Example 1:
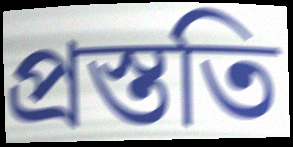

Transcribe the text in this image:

প্রস্ততি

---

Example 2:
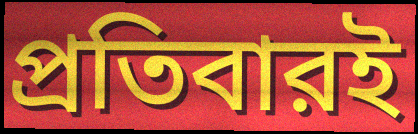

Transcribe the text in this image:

প্রতিবারই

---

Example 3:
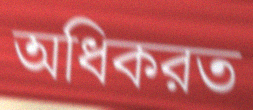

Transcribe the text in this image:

অধিকরত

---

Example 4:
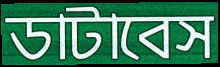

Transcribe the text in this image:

ডাটাবেস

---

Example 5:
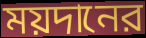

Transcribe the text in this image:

ময়দানের